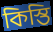
কিস্তি